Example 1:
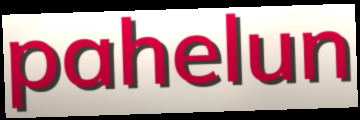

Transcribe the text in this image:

pahelun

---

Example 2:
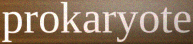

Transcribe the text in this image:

prokaryote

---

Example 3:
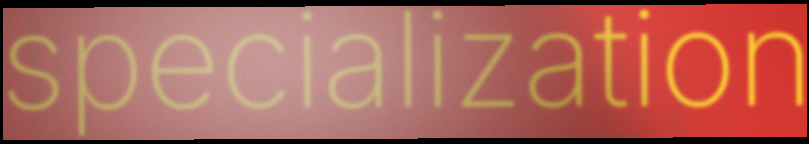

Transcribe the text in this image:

specialization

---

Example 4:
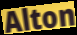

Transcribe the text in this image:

Alton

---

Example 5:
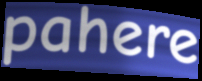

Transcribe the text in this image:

pahere